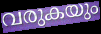
വരുകയും